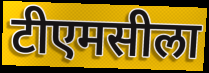
टीएमसीला